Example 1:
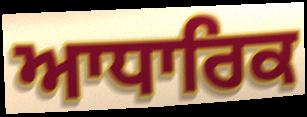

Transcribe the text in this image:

ਆਧਾਰਿਕ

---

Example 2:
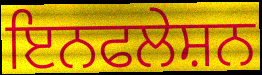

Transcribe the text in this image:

ਇਨਫਲੇਸ਼ਨ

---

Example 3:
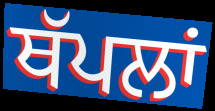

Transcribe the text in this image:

ਥੱਪਲਾਂ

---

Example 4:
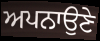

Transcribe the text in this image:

ਅਪਨਾਉਣੇ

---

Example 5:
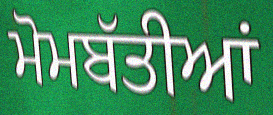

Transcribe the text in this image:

ਮੋਮਬੱਤੀਆਂ